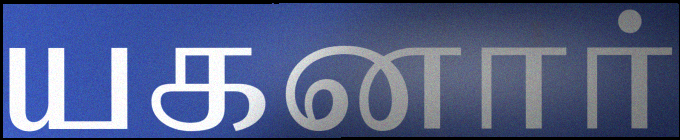
யகனார்